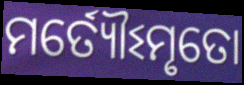
ମର୍ତ୍ୟୌଽମୃତୋ